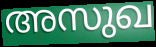
അസുഖ